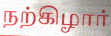
நற்கிழார்